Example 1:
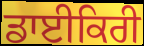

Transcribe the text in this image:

ਡਾਈਕਿਰੀ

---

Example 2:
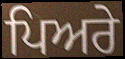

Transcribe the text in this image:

ਪਿਅਰੇ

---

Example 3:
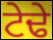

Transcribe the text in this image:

ਟੇਢੇ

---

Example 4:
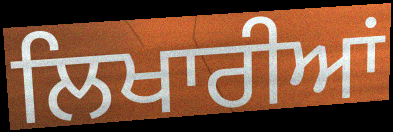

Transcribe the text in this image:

ਲਿਖਾਰੀਆਂ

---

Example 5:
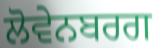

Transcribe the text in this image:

ਲੋਵੇਨਬਰਗ